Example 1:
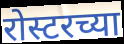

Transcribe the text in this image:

रोस्टरच्या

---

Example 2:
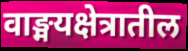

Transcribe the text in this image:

वाङ्मयक्षेत्रातील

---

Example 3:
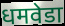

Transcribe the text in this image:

धमवेडा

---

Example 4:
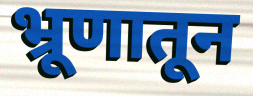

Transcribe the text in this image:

भ्रूणातून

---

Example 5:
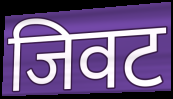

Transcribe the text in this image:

जिवट